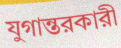
যুগান্তরকারী